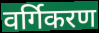
वर्गिकरण